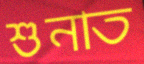
শুনাত